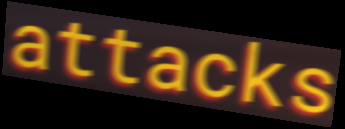
attacks